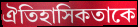
ঐতিহাসিকতাকে